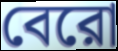
বেরো